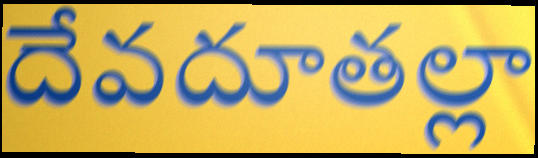
దేవదూతల్లా